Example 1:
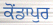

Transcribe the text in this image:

ਕੋਂਡਾਪੁਰ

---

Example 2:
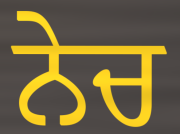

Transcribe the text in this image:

ਨੇਚ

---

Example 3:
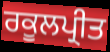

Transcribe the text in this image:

ਰਕੂਲਪ੍ਰੀਤ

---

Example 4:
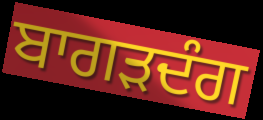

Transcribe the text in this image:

ਬਾਗੜਦੰਗ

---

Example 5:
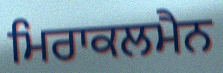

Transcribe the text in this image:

ਮਿਰਾਕਲਮੈਨ